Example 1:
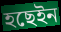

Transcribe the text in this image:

হছেইন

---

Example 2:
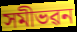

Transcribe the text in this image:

সমীভৱন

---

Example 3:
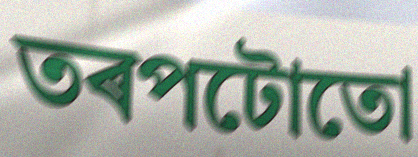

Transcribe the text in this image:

তৰপটোতো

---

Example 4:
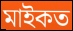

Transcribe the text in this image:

মাইকত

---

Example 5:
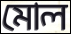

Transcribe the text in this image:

মোল